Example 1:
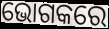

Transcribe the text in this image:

ଭୋଗକରେ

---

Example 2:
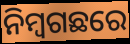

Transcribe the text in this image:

ନିମ୍ବଗଛରେ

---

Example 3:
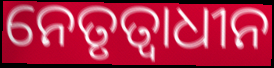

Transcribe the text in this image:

ନେତୃତ୍ୱାଧୀନ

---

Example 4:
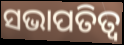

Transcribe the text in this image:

ସଭାପତିତ୍ବ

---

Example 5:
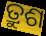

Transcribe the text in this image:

ତ୍ରୁଶ